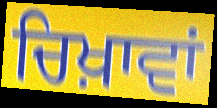
ਚਿਖ਼ਾਵਾਂ